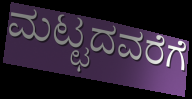
ಮಟ್ಟದವರೆಗೆ